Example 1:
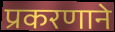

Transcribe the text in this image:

प्रकरणाने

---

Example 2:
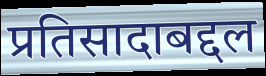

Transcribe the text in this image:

प्रतिसादाबद्दल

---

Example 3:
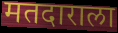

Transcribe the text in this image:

मतदाराला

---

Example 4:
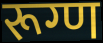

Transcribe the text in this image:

रूग्ण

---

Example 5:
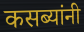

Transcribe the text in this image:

कसब्यांनी